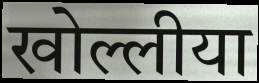
खोल्लीया